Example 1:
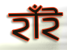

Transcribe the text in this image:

হাঁই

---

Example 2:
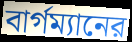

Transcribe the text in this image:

বার্গম্যানের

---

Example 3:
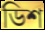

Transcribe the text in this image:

ডিশ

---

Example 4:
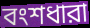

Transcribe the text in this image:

বংশধারা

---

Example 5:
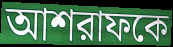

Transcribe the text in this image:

আশরাফকে